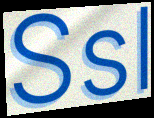
Ssl